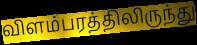
விளம்பரத்திலிருந்து